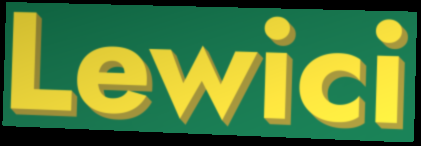
Lewici